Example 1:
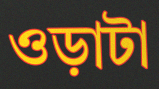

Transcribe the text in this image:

ওড়াটা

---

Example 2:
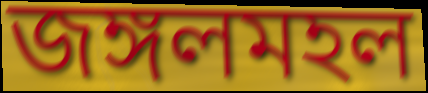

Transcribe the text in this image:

জঙ্গলমহল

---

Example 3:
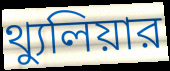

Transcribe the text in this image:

থ্যুলিয়ার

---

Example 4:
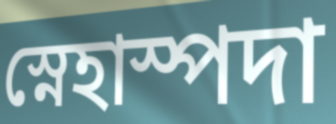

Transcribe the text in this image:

স্নেহাস্পদা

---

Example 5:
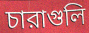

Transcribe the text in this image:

চারাগুলি